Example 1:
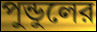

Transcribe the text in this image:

পুন্ডুলের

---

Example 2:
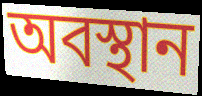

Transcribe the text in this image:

অবস্থান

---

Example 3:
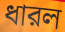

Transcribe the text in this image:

ধারল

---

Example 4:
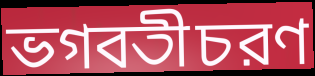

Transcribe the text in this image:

ভগবতীচরণ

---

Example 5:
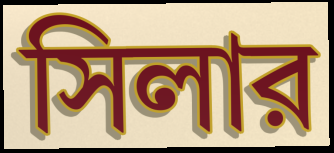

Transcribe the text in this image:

সিলার